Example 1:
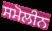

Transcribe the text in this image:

ਸਮੋਲੀਨ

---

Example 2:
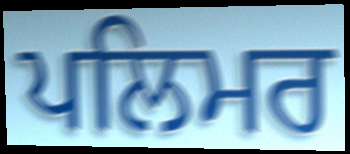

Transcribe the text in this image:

ਪਲਿਮਰ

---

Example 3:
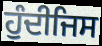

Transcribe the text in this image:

ਹੁੰਦੀਜਿਸ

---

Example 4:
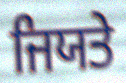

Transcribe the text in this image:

ਜਿਯਤੇ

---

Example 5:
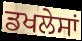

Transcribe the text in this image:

ਡਖਲੇਸਾਂ